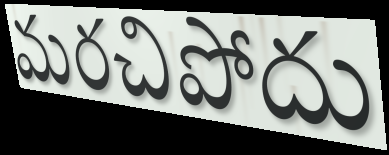
మరచిపోదు